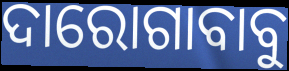
ଦାରୋଗାବାବୁ